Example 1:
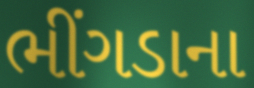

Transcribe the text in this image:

ભીંગડાના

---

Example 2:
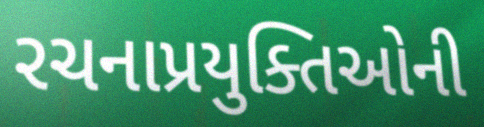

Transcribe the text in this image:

રચનાપ્રયુક્તિઓની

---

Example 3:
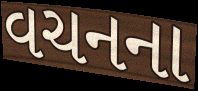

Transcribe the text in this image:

વચનના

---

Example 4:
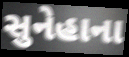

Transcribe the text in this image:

સુનેહાના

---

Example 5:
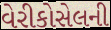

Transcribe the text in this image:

વેરીકોસેલની